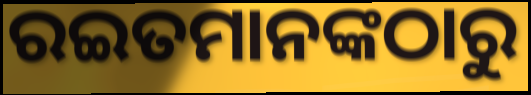
ରଇତମାନଙ୍କଠାରୁ